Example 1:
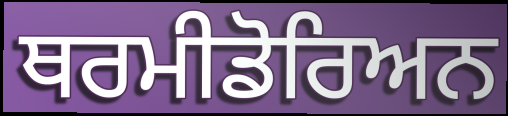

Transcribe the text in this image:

ਥਰਮੀਡੋਰਿਅਨ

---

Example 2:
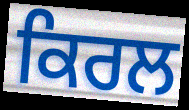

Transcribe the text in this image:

ਕਿਰਲ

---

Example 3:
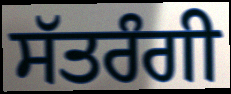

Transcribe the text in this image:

ਸੱਤਰੰਗੀ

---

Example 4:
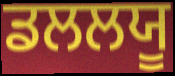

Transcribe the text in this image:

ਡਲਲਯੂ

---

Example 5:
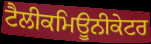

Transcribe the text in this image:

ਟੈਲੀਕਮਿਊਨੀਕੇਟਰ